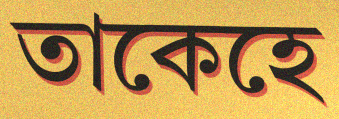
তাকেহে